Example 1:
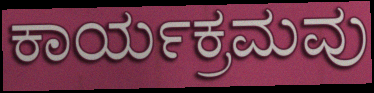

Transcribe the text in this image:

ಕಾರ್ಯಕ್ರಮವು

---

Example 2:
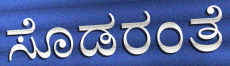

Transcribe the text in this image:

ಸೊಡರಂತೆ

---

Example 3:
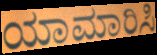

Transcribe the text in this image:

ಯಾಮಾರಿಸಿ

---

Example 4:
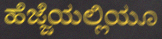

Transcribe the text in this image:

ಹೆಜ್ಜೆಯಲ್ಲಿಯೂ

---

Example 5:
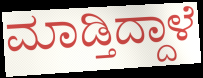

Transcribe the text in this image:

ಮಾಡ್ತಿದ್ದಾಳೆ